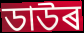
ডাউৰ